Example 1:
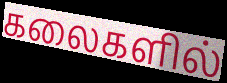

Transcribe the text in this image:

கலைகளில்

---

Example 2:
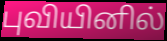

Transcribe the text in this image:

புவியினில்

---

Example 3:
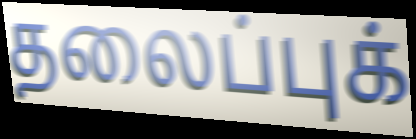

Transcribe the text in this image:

தலைப்புக்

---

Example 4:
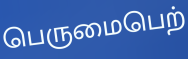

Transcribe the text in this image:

பெருமைபெற்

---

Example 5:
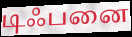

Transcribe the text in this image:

டிஃபனை